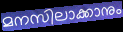
മനസിലാക്കാനും